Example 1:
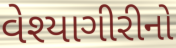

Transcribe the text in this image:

વેશ્યાગીરીનો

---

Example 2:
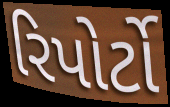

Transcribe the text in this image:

રિપોર્ટો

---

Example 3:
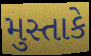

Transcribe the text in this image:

મુસ્તાકે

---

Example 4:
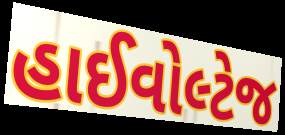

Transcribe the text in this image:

હાઈવોલ્ટેજ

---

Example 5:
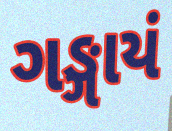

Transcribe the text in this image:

ગઙ્ગાયં